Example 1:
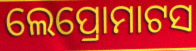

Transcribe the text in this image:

ଲେପ୍ରୋମାଟସ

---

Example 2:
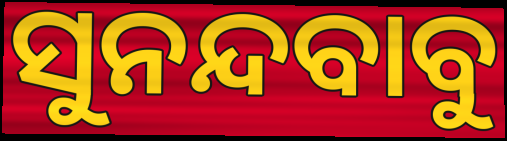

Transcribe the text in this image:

ସୁନନ୍ଦବାବୁ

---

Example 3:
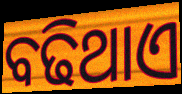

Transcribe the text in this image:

ବଢିଥାଏ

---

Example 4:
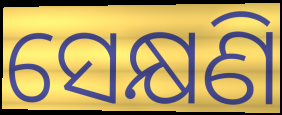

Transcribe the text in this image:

ସେକ୍ଷଣି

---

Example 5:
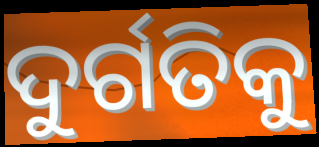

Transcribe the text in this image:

ଦୁର୍ଗତିକୁ